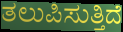
ತಲುಪಿಸುತ್ತಿದೆ